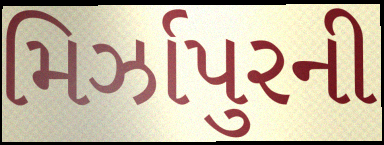
મિર્ઝાપુરની